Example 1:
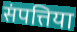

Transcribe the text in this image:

संपत्तिया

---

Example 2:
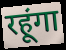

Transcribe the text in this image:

रहूंगा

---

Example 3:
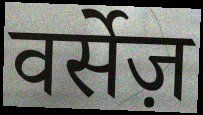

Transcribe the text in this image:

वर्सेज़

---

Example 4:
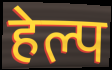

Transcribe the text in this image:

हेल्‍प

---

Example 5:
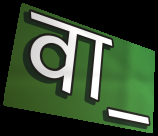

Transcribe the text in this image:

वा॒